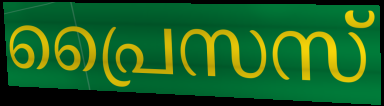
പ്രൈസസ്